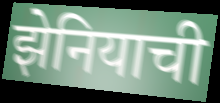
झेनियाची